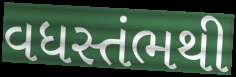
વધસ્તંભથી